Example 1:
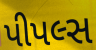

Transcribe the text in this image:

પીપલ્સ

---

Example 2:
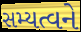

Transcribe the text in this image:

સમ્યત્વને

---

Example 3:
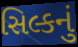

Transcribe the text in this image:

સિલ્કનું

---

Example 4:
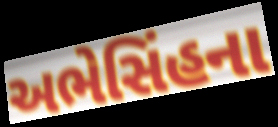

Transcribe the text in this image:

અભેસિંહના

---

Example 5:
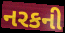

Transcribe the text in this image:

નરકની